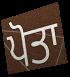
ਪੋਤਾ